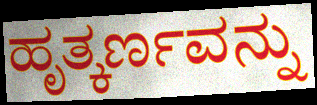
ಹೃತ್ಕರ್ಣವನ್ನು